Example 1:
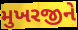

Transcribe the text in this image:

મુખરજીને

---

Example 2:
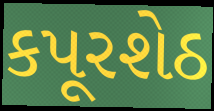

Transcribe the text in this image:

કપૂરશેઠ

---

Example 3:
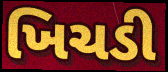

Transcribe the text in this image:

ખિચડી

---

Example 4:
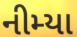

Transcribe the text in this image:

નીમ્યા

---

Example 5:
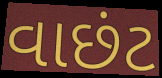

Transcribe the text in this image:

વાછંટ